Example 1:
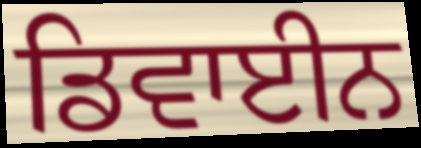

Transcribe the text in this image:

ਡਿਵਾਈਨ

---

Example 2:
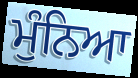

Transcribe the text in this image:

ਮੁੰਨਿਆ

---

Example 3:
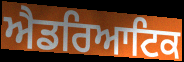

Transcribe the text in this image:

ਐਡਰਿਆਟਿਕ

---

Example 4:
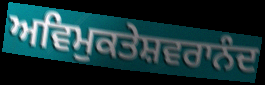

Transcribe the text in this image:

ਅਵਿਮੁਕਤੇਸ਼ਵਰਾਨੰਦ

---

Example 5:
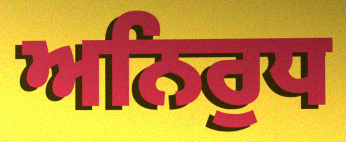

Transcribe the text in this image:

ਅਨਿਰੁਧ